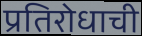
प्रतिरोधाची